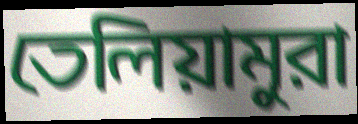
তেলিয়ামুরা